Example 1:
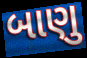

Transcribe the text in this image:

બાણુ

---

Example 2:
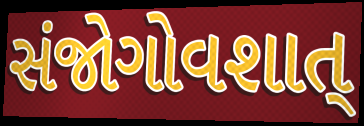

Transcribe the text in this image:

સંજોગોવશાત્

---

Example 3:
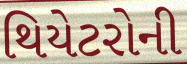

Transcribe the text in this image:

થિયેટરોની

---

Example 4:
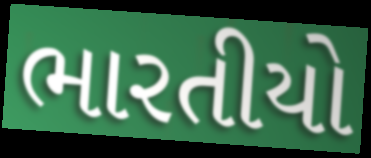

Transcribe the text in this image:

ભારતીયો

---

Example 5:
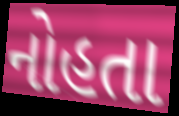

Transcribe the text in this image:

નોહતા